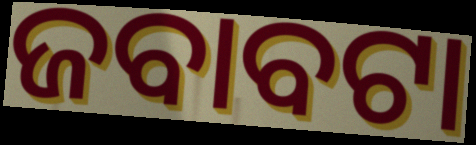
ଜବାବଟା